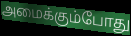
அமைக்கும்போது